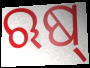
ଋଷ୍